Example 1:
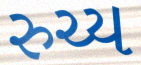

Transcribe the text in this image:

રુચ્ય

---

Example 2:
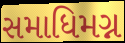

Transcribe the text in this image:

સમાધિમગ્ન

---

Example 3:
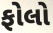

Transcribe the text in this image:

ફોલો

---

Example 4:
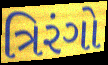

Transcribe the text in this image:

ત્રિરંગો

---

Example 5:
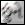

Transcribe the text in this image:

છુંને